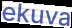
ekuva